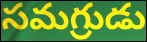
సమగ్రుడు